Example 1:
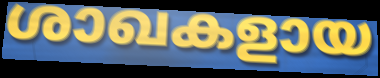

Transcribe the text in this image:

ശാഖകളായ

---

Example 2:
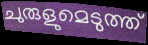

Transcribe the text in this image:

ചുരുളുമെടുത്ത്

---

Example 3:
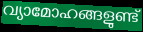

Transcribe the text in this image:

വ്യാമോഹങ്ങളുണ്ട്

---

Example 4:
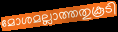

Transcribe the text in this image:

മോശമല്ലാത്തതുകൂടി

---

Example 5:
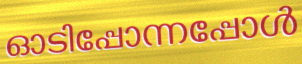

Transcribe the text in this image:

ഓടിപ്പോന്നപ്പോൾ